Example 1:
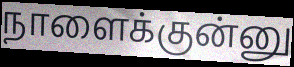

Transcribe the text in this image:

நாளைக்குன்னு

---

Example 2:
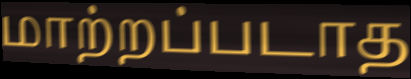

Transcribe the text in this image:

மாற்றப்படாத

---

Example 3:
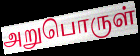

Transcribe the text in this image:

அறுபொருள்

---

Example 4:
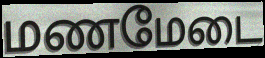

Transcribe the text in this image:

மணமேடை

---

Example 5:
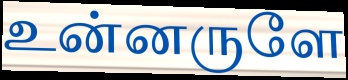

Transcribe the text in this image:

உன்னருளே